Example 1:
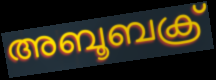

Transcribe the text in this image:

അബൂബക്ര്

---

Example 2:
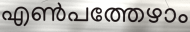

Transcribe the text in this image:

എൺപത്തേഴാം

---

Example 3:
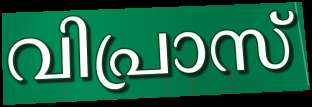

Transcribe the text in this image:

വിപ്രാസ്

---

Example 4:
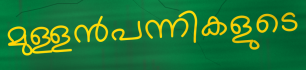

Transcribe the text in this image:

മുള്ളൻപന്നികളുടെ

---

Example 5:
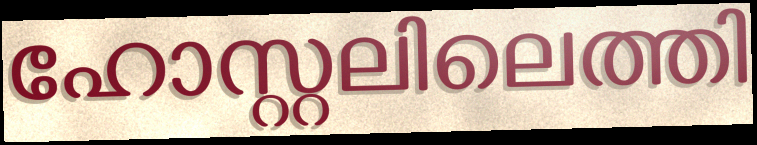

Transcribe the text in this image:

ഹോസ്റ്റലിലെത്തി